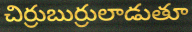
చిర్రుబుర్రులాడుతూ